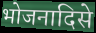
भोजनादिसे